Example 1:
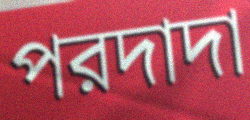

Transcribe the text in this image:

পরদাদা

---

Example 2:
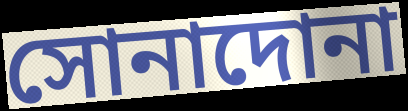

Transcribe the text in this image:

সোনাদোনা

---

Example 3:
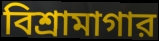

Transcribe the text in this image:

বিশ্রামাগার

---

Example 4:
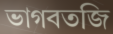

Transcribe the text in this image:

ভাগবতজি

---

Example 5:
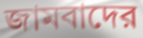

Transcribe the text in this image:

জামবাদের